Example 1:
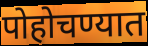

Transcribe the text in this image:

पोहोचण्यात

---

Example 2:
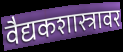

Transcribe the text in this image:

वैद्यकशास्त्रावर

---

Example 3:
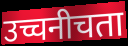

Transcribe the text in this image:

उच्चनीचता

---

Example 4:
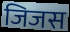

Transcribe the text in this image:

जिजस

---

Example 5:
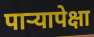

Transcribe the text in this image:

पाऱ्यापेक्षा